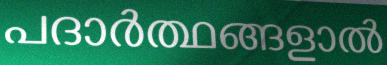
പദാർത്ഥങ്ങളാൽ